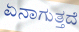
ಏನಾಗುತ್ತದೆ